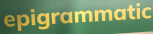
epigrammatic